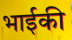
भाईकी